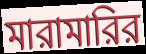
মারামারির